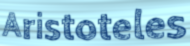
Aristoteles